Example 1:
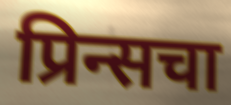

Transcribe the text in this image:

प्रिन्सचा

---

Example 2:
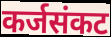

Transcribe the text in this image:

कर्जसंकट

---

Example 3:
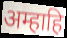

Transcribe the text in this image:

अम्हाहि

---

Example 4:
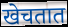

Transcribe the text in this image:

खेचतात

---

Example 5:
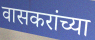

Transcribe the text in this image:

वासकरांच्या